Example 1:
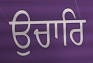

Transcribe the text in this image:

ਉਚਾਰਿ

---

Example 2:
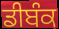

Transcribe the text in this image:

ਡੀਬੰਕ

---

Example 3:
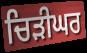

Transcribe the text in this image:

ਚਿੜੀਘਰ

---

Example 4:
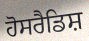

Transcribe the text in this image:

ਹੋਸਰੈਡਿਸ਼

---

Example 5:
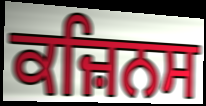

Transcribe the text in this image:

ਕਜ਼ਿਨਸ